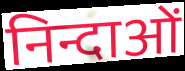
निन्दाओं